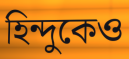
হিন্দুকেও